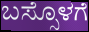
ಬಸ್ಸೊಳಗೆ